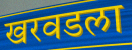
खरवडला